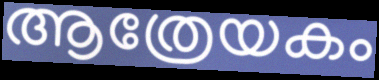
ആത്രേയകം